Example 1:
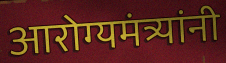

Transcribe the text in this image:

आरोग्यमंत्र्यांनी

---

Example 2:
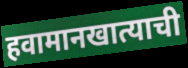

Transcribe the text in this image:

हवामानखात्याची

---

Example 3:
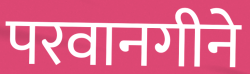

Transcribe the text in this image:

परवानगीने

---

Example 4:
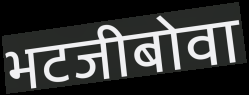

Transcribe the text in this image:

भटजीबोवा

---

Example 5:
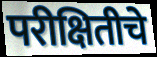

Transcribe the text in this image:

परीक्षितीचे